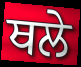
ਥਲੇ